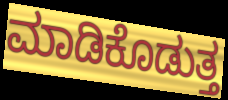
ಮಾಡಿಕೊಡುತ್ತ